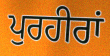
ਪੁਰਹੀਰਾਂ